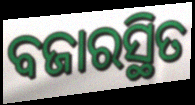
ବଜାରସ୍ଥିତ